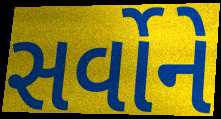
સર્વોને